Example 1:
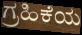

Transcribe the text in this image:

ಗ್ರಹಿಕೆಯ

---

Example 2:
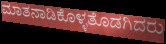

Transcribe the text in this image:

ಮಾತನಾಡಿಕೊಳ್ಳತೊಡಗಿದರು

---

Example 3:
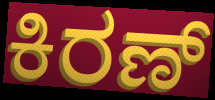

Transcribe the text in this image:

ಕಿರಣ್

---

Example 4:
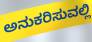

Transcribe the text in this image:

ಅನುಕರಿಸುವಲ್ಲಿ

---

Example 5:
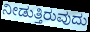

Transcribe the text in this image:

ನೀಡುತ್ತಿರುವುದು